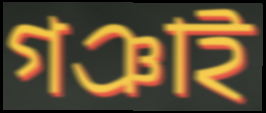
গঞাই